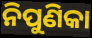
ନିପୁଣିକା